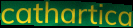
cathartica